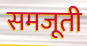
समजूती